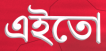
এইতো